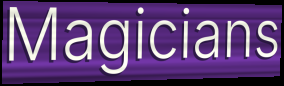
Magicians